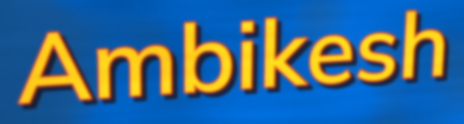
Ambikesh